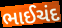
ભાઈચંદ